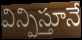
విన్పిస్తూనే